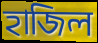
হাজিল